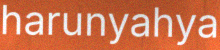
harunyahya